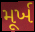
મૂર્ખ